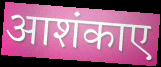
आशंकाए